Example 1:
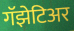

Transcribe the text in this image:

गॅझेटिअर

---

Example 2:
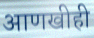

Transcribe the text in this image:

आणखीही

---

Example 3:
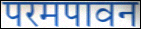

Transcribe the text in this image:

परमपावन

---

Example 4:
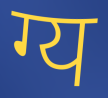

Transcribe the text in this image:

ग्य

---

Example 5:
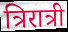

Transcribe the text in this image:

त्रिरात्री